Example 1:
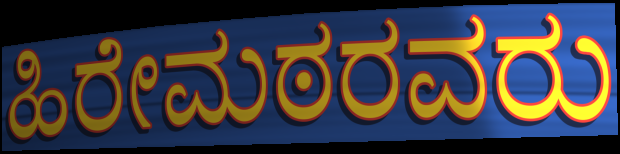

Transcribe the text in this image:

ಹಿರೇಮಠರವರು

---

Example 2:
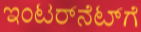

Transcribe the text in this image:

ಇಂಟರ್‌ನೆಟ್‌ಗೆ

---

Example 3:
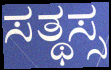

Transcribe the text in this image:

ಸತ್ಥಸ್ಸ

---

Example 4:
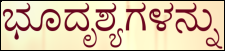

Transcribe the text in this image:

ಭೂದೃಶ್ಯಗಳನ್ನು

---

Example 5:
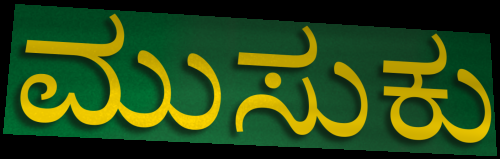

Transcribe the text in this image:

ಮುಸುಕು